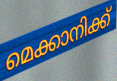
മെക്കാനിക്ക്